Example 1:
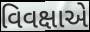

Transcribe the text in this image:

વિવક્ષાએ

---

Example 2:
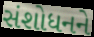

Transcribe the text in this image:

સંશોધનને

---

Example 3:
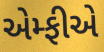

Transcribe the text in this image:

એમ્ફીએ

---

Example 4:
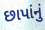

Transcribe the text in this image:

છાપાંનું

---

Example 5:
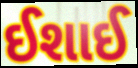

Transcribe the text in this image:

ઈશાઈ